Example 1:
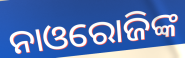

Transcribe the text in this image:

ନାଓରୋଜିଙ୍କ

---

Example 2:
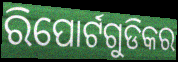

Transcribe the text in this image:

ରିପୋର୍ଟଗୁଡିକର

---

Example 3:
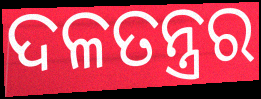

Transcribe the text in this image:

ଦଳତନ୍ତ୍ରର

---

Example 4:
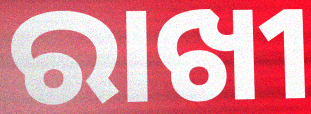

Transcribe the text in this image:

ରାଖୀ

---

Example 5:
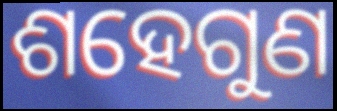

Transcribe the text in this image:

ଶହେଗୁଣ